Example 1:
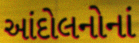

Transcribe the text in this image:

આંદોલનોનાં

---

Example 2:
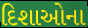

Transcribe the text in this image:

દિશાઓના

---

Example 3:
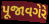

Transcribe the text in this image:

પૂજાવગેરે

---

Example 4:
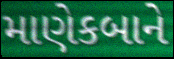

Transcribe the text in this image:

માણેકબાને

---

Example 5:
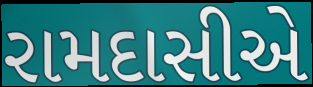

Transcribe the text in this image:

રામદાસીએ